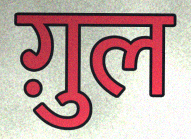
ग़ुल